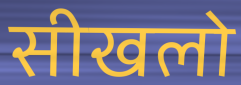
सीखलो